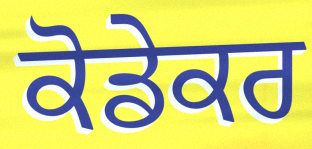
ਕੋਡੇਕਰ